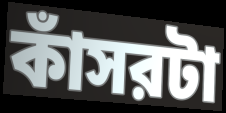
কাঁসরটা